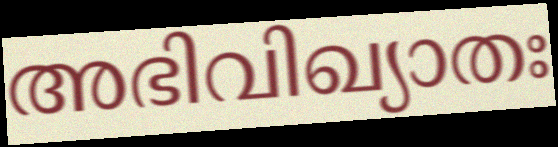
അഭിവിഖ്യാതഃ